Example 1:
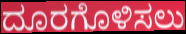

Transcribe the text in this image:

ದೂರಗೊಳಿಸಲು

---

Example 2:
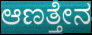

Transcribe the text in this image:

ಆಣತ್ತೇನ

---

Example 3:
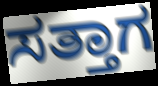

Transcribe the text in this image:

ಸತ್ತಾಗ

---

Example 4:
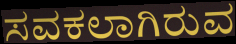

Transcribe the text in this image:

ಸವಕಲಾಗಿರುವ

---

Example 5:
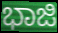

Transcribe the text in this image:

ಭಾಜಿ